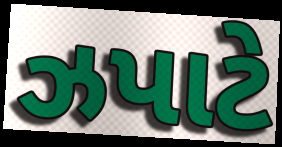
ઝપાટે